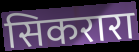
सिकरारा